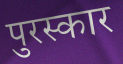
पुरस्कार